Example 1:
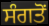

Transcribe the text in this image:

ਸੰਗਤੋਂ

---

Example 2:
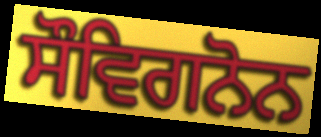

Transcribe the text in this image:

ਸੌਵਿਗਨੋਨ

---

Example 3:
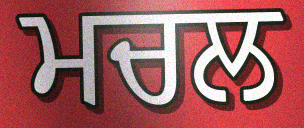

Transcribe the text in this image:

ਮਚਲ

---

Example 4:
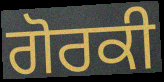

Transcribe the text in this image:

ਗੋਰਕੀ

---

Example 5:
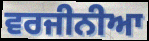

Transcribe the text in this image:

ਵਰਜੀਨੀਆ